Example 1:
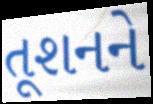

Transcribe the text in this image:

તૂશનને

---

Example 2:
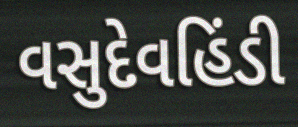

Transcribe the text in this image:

વસુદેવહિંડી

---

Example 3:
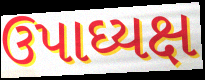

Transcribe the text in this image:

ઉપાઘ્યક્ષ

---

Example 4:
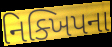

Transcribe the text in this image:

નિક્ખિપના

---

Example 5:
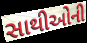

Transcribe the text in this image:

સાથીઓની